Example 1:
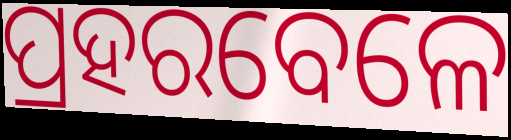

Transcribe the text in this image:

ପ୍ରହରବେଳେ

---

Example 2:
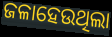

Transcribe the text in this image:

ଜଳାହେଉଥିଲା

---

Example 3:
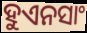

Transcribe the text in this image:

ହୁଏନସାଂ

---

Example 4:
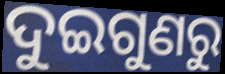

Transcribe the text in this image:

ଦୁଇଗୁଣରୁ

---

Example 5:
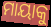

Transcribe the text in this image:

ମାୟାକୁ